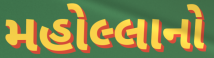
મહોલ્લાનો